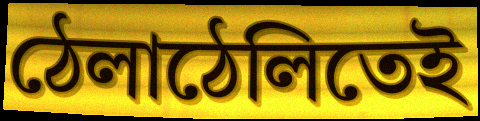
ঠেলাঠেলিতেই